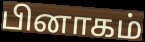
பினாகம்